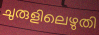
ചുരുളിലെഴുതി